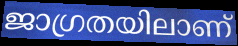
ജാഗ്രതയിലാണ്